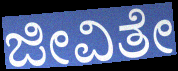
ಜೀವಿತೇ